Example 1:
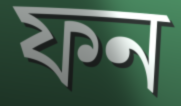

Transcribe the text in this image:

ফন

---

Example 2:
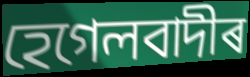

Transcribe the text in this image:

হেগেলবাদীৰ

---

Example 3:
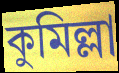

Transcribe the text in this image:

কুমিল্লা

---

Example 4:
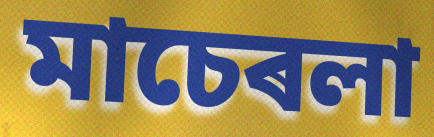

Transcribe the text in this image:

মাচেৰলা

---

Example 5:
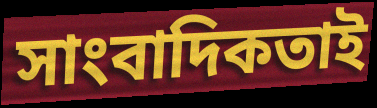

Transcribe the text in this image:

সাংবাদিকতাই